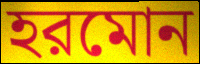
হরমোন